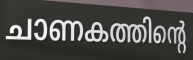
ചാണകത്തിന്റെ